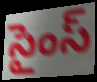
సైంస్